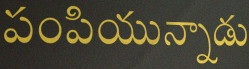
పంపియున్నాడు